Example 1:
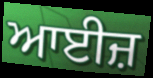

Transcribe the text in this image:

ਆਈਜ਼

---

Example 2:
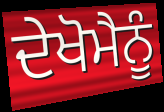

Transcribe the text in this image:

ਦੇਖੋਮੈਨੂੰ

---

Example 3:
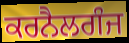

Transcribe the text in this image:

ਕਰਨੈਲਗੰਜ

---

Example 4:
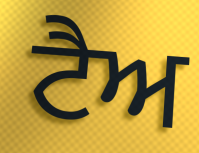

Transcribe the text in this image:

ਟੈਅ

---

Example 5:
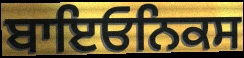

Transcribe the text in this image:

ਬਾਇਓਨਿਕਸ